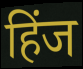
हिंज